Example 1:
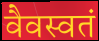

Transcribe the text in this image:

वैवस्वतं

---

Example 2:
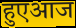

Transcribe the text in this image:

हुएआज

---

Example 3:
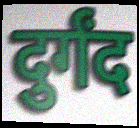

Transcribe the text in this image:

दुर्गंद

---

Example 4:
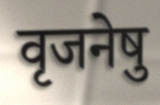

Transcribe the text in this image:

वृजनेषु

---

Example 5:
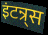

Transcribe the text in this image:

इंटन्र्स